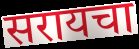
सरायचा